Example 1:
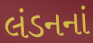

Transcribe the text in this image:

લંડનનાં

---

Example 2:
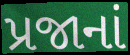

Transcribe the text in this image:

પ્રજાનાં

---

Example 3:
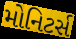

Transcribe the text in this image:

મોનિટર્સ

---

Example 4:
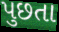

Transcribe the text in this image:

પુછતા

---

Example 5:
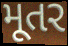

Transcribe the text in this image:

મૂતર